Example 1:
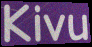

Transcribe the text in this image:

Kivu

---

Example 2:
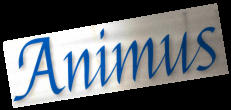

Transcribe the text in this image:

Animus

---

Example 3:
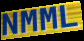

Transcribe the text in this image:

NMML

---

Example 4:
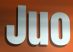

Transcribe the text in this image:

Juo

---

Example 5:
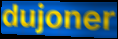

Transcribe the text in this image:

dujoner